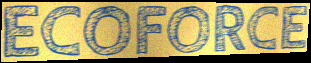
ECOFORCE